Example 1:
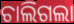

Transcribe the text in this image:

ଚାଲିଗଲା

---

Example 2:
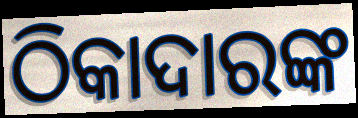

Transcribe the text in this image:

ଠିକାଦାରଙ୍କ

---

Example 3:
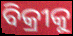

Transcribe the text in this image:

ବିକ୍ରୀକୁ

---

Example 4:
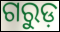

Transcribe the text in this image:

ଗରୁଡ଼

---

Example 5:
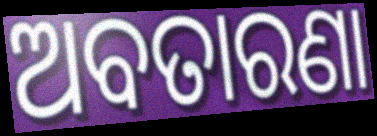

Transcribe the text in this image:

ଅବତାରଣା